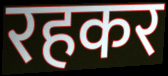
रहकर